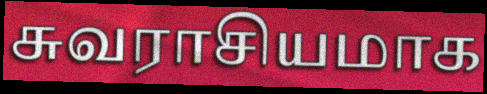
சுவராசியமாக